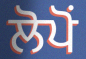
ਲੋਪੋਂ